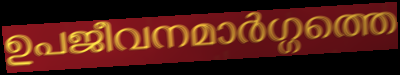
ഉപജീവനമാർഗ്ഗത്തെ